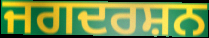
ਜਗਦਰਸ਼ਨ